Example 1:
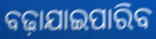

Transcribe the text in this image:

ବଢ଼ାଯାଇପାରିବ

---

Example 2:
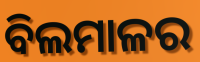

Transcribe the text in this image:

ବିଲମାଳର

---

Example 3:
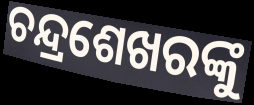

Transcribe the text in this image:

ଚନ୍ଦ୍ରଶେଖରଙ୍କୁ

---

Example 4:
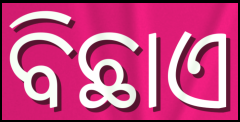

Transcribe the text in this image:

ବିଛାଏ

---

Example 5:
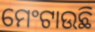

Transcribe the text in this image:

ମେଂଟାଉଛି